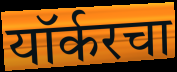
यॉर्करचा